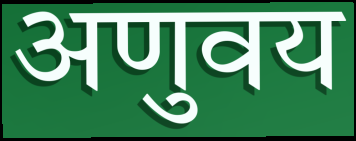
अणुवय